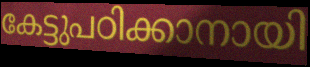
കേട്ടുപഠിക്കാനായി